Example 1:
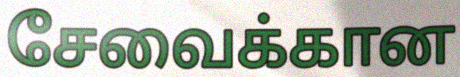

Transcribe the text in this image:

சேவைக்கான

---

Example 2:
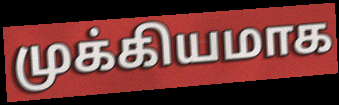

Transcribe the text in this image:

முக்கியமாக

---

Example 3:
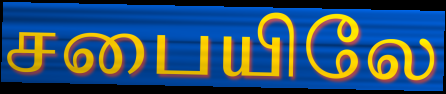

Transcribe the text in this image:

சபையிலே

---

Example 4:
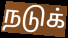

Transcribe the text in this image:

நடுக்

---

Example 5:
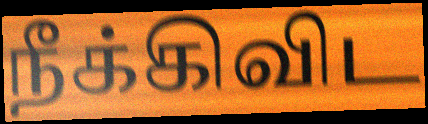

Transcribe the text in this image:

நீக்கிவிட